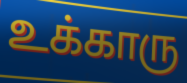
உக்காரு